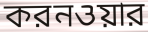
করনওয়ার